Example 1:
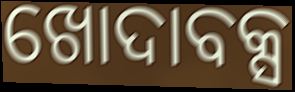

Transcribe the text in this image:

ଖୋଦାବକ୍ସ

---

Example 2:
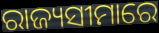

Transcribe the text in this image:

ରାଜ୍ୟସୀମାରେ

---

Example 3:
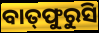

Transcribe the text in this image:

ବାତ୍‌ଫୁରୁସି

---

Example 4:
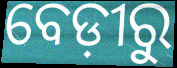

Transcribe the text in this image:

ବେଡ଼ୀରୁ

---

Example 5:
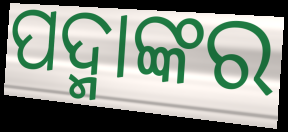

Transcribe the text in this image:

ପଦ୍ମାଙ୍କର